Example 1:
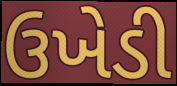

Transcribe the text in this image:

ઉખેડી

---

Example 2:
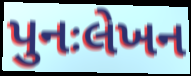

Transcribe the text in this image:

પુનઃલેખન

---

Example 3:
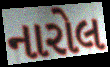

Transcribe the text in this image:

નારોલ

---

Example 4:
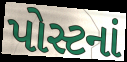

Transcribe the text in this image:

પોસ્ટનાં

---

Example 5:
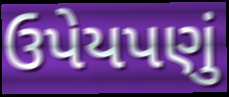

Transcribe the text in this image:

ઉપેયપણું